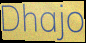
Dhajo